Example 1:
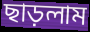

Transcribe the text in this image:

ছাড়লাম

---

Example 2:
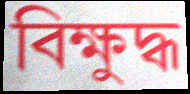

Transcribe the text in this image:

বিক্ষুদ্ধ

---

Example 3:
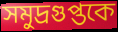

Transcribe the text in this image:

সমুদ্রগুপ্তকে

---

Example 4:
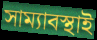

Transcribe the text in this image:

সাম্যাবস্থাই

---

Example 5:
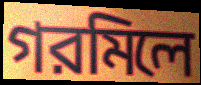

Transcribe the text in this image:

গরমিলে